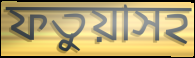
ফতুয়াসহ